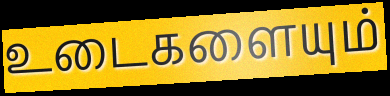
உடைகளையும்